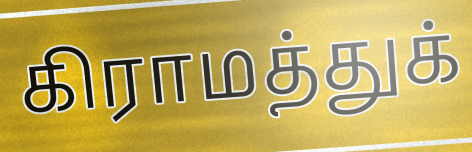
கிராமத்துக்